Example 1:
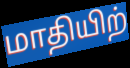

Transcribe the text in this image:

மாதியிற்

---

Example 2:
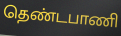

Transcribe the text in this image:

தெண்டபாணி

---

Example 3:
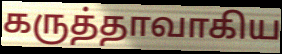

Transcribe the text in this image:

கருத்தாவாகிய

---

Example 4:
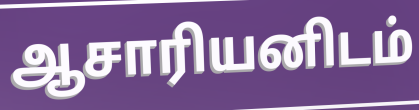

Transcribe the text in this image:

ஆசாரியனிடம்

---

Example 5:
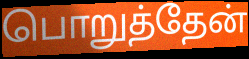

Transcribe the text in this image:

பொறுத்தேன்